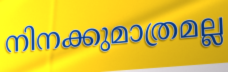
നിനക്കുമാത്രമല്ല